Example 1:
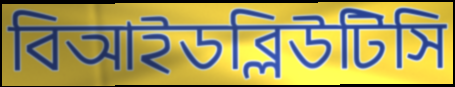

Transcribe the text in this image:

বিআইডব্লিউটিসি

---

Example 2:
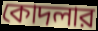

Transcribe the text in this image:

কোদলার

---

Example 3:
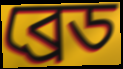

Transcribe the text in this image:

ব্রেড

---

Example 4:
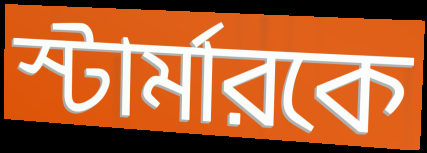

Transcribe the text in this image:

স্টার্মারকে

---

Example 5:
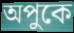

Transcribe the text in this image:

অপুকে